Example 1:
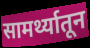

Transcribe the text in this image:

सामर्थ्यातून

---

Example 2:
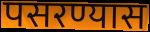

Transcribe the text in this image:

पसरण्यास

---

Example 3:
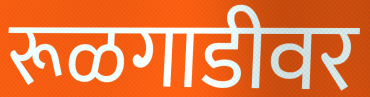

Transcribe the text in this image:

रूळगाडीवर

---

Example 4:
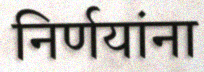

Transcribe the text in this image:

निर्णयांना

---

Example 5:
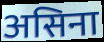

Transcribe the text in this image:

असिना